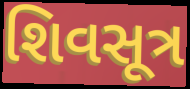
શિવસૂત્ર